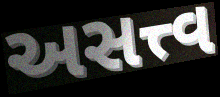
અસત્ત્વ